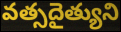
వత్సదైత్యుని